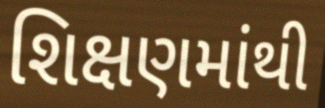
શિક્ષણમાંથી